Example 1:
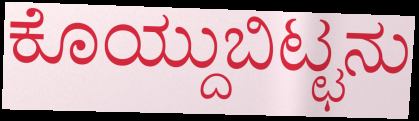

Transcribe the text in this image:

ಕೊಯ್ದುಬಿಟ್ಟನು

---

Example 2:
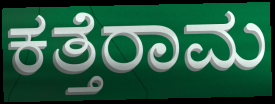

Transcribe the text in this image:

ಕತ್ತೆರಾಮ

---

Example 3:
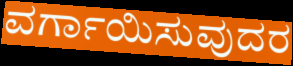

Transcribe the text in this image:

ವರ್ಗಾಯಿಸುವುದರ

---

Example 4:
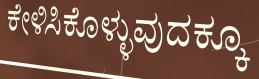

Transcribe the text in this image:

ಕೇಳಿಸಿಕೊಳ್ಳುವುದಕ್ಕೂ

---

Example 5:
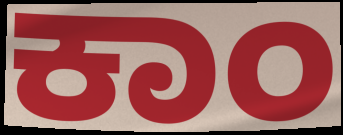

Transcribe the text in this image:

ಕಾಂ